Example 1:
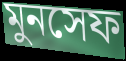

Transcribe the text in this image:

মুনসেফ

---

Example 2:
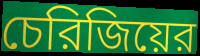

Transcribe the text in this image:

চেরিজিয়ের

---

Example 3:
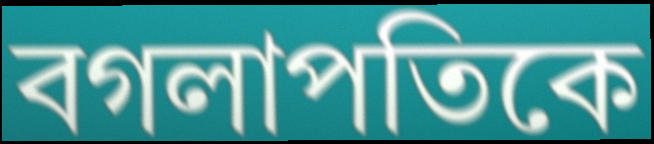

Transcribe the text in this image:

বগলাপতিকে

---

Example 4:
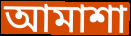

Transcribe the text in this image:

আমাশা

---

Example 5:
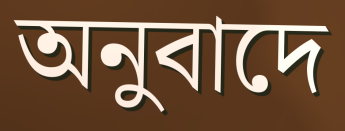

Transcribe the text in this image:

অনুবাদে